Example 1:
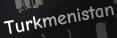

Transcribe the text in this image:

Turkmenistan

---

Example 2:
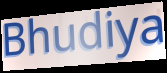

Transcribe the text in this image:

Bhudiya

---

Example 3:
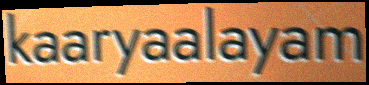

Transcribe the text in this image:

kaaryaalayam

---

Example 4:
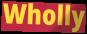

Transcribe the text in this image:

Wholly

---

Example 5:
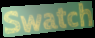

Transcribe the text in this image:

Swatch